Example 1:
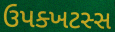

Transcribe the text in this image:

ઉપક્ખટસ્સ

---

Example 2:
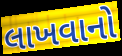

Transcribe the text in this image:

લાખવાનો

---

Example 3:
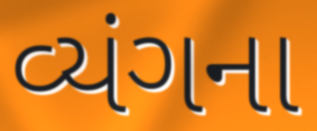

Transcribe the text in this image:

વ્યંગના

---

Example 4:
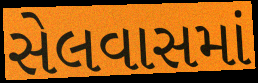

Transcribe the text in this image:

સેલવાસમાં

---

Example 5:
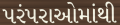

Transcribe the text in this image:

પરંપરાઓમાંથી